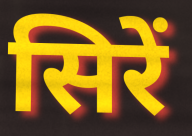
सिरें